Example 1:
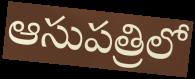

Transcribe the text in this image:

ఆసుపత్రిలో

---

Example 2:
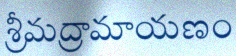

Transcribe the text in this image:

శ్రీమద్రామాయణం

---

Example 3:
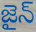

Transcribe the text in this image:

జైన్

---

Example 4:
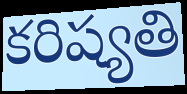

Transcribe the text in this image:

కరిష్యతి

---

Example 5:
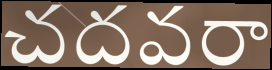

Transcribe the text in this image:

చదవరా